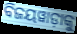
ବିଜୟୱାଡ଼ାକୁ